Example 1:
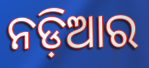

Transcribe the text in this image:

ନଡ଼ିଆର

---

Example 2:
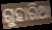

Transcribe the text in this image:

ଗୁହାରିଆ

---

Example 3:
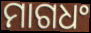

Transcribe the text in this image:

ମାଗଧଂ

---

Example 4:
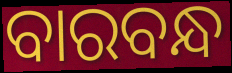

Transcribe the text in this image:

ବାରବନ୍ଧ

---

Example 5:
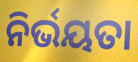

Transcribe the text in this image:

ନିର୍ଭୟତା